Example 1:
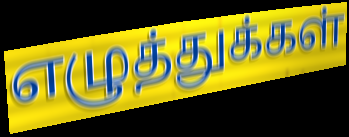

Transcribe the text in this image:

எழுத்துக்கள்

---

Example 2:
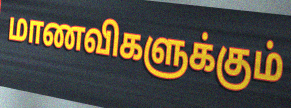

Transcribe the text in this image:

மாணவிகளுக்கும்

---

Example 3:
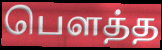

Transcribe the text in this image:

பௌத்த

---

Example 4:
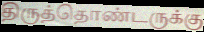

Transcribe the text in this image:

திருத்தொண்டருக்கு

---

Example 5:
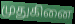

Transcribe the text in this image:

முதுகினை